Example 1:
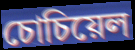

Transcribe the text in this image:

চোচিয়েল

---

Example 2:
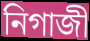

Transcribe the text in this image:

নিগাজী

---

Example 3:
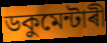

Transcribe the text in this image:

ডকুমেন্টাৰী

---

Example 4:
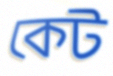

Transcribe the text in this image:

কেট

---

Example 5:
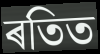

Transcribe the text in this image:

ৰতিত